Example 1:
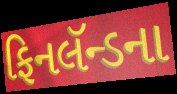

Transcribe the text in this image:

ફિનલૅન્ડના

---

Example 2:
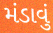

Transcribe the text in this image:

મંડાવું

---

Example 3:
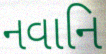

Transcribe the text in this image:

નવાનિ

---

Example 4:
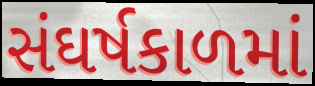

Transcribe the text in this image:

સંઘર્ષકાળમાં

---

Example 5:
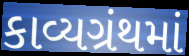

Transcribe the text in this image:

કાવ્યગ્રંથમાં